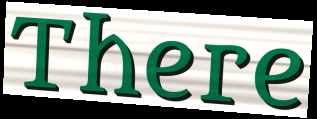
There